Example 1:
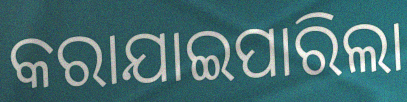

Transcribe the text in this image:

କରାଯାଇପାରିଲା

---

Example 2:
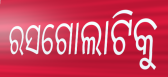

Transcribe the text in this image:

ରସଗୋଲାଟିକୁ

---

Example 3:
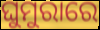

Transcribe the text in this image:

ଘୁମୁରାରେ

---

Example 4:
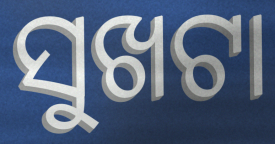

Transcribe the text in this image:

ସୁଖଟା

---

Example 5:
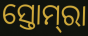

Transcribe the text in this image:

ସ୍ତୋମ୍‌ରା